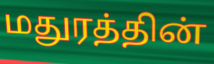
மதுரத்தின்